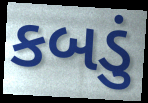
કબડું